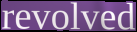
revolved